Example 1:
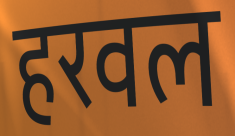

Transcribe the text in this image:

हरवल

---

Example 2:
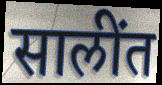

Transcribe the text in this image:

सालींत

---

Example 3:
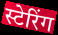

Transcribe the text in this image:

स्टेरिंग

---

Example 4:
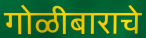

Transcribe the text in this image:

गोळीबाराचे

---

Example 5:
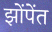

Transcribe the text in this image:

झोंपेंत